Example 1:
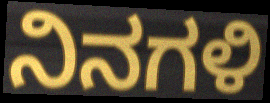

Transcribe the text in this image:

ನಿನಗಳಿ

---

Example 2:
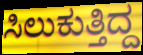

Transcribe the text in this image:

ಸಿಲುಕುತ್ತಿದ್ದ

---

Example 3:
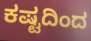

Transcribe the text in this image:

ಕಷ್ಟದಿಂದ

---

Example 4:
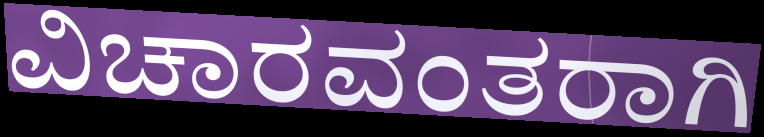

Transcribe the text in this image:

ವಿಚಾರವಂತರಾಗಿ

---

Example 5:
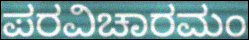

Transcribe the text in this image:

ಪರವಿಚಾರಮಂ